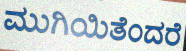
ಮುಗಿಯಿತೆಂದರೆ